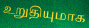
உறுதியுமாக